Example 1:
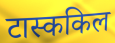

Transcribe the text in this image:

टास्ककिल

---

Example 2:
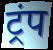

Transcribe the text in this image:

ट्रंप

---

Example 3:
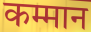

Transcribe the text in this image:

कम्मान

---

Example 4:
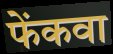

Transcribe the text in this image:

फेंकवा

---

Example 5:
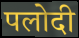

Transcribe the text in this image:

पलोदी